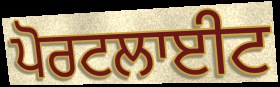
ਪੋਰਟਲਾਈਟ